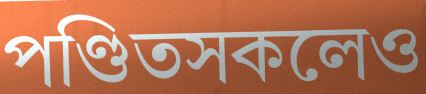
পণ্ডিতসকলেও